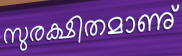
സുരക്ഷിതമാണു്